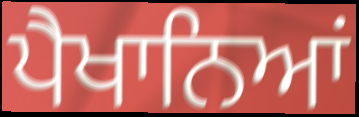
ਪੈਖਾਨਿਆਂ